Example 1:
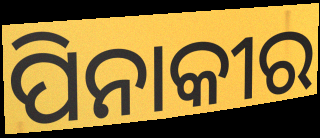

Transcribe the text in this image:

ପିନାକୀର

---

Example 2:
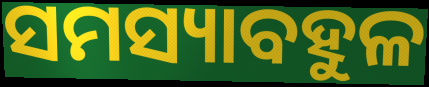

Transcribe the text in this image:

ସମସ୍ୟାବହୁଳ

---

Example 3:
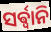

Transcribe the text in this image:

ସର୍ଵ୍ଵାନି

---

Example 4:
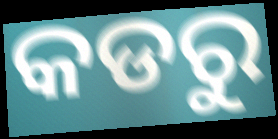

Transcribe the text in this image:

କଡରୁ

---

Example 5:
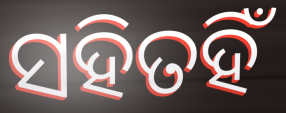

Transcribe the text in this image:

ସହିତହିଁ